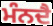
ਮੰਨਦੈ